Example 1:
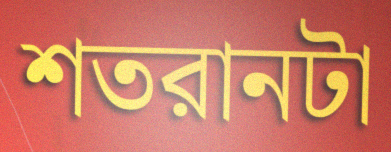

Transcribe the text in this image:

শতরানটা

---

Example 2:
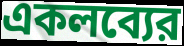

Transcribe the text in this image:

একলব্যের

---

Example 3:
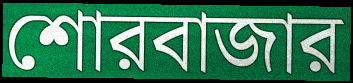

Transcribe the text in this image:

শোরবাজার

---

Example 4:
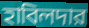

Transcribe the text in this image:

হাবিলদার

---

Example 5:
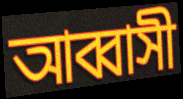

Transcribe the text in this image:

আব্বাসী